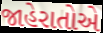
જાહેરાતોએ